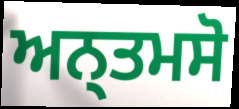
ਅਨ੍ਤਮਸੋ